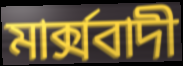
মাৰ্ক্সবাদী